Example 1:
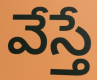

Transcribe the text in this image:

వేస్తే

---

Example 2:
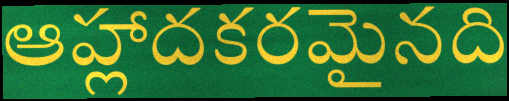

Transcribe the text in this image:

ఆహ్లాదకరమైనది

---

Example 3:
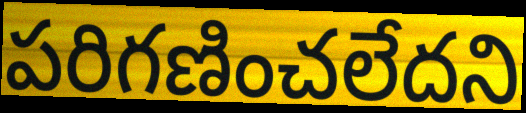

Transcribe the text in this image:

పరిగణించలేదని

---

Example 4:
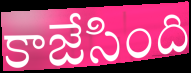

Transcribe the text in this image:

కాజేసింది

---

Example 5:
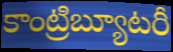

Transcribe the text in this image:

కాంట్రిబ్యూటరీ